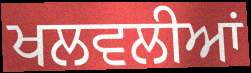
ਖਲਵਲੀਆਂ